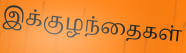
இக்குழந்தைகள்